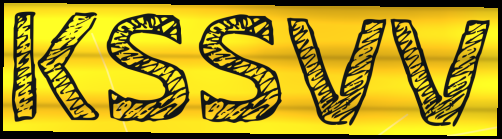
KSSVV